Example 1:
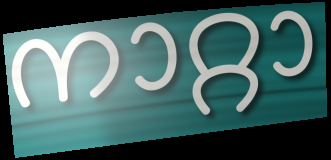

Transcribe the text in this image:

നാറ്റാ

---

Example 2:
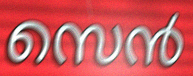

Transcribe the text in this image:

സെൻ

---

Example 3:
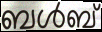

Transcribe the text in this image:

ബൾബ്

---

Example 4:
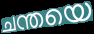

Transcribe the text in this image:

ചന്തയെ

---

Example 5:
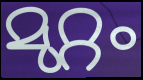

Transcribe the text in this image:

മുറ്റം